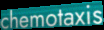
chemotaxis